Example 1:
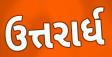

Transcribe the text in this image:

ઉત્તરાર્ધ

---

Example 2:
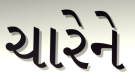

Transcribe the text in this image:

ચારેને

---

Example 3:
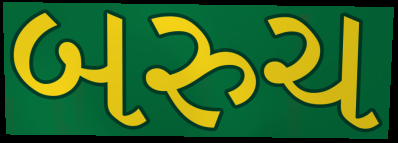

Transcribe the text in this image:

બરુચ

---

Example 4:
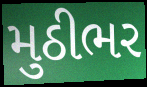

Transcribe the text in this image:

મુઠીભર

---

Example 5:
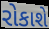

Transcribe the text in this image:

રોકાશે